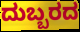
ದುಬ್ಬರದ